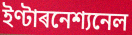
ইণ্টাৰনেশ্যনেল